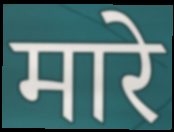
मारे